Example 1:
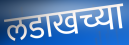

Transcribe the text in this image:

लडाखच्या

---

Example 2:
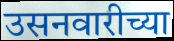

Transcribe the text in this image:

उसनवारीच्या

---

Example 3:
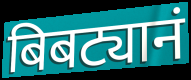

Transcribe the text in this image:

बिबट्यानं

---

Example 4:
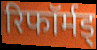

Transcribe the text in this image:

रिफॉर्मड्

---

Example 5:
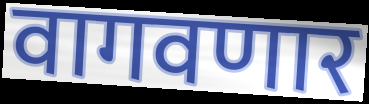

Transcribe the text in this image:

वागवणार